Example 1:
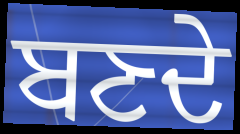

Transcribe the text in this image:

ਬਣਦੇ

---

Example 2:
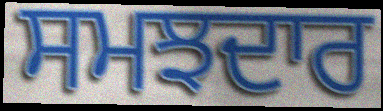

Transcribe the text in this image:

ਸਮਝਦਾਰ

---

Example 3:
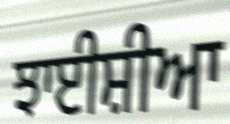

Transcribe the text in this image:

ਝਾਈਸ਼ੀਆ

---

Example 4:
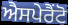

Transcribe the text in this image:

ਐਸਪੇਰੈਂਟੋ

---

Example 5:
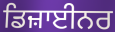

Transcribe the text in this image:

ਡਿਜ਼ਾਈਨਰ